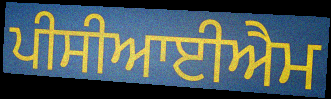
ਪੀਸੀਆਈਐਮ